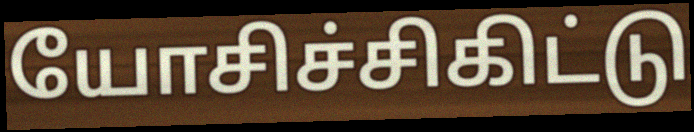
யோசிச்சிகிட்டு